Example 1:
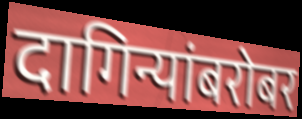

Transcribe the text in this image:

दागिन्यांबरोबर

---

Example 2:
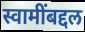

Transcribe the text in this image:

स्वामींबद्दल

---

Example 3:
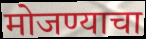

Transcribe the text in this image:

मोजण्याचा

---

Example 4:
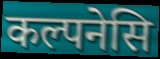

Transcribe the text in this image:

कल्पनेसि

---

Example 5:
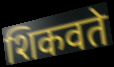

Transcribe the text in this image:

शिकवते